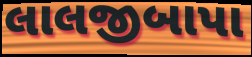
લાલજીબાપા